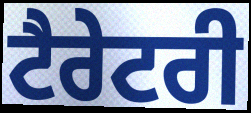
ਟੈਰੇਟਰੀ